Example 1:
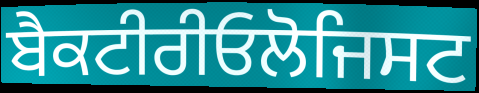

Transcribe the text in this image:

ਬੈਕਟੀਰੀਓਲੋਜਿਸਟ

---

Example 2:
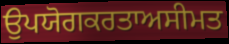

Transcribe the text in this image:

ਉਪਯੋਗਕਰਤਾਅਸੀਮਤ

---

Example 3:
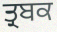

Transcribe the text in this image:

ਤ੍ਰਬਕ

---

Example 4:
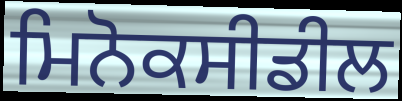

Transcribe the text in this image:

ਮਿਨੋਕਸੀਡੀਲ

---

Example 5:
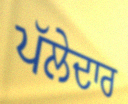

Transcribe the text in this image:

ਪੱਲੇਦਾਰ